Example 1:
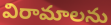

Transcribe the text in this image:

విరామాలను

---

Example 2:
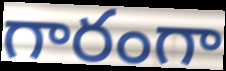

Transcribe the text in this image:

గారంగా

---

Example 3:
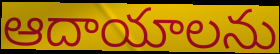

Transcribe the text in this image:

ఆదాయాలను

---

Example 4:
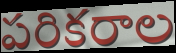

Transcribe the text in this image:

పరికరాల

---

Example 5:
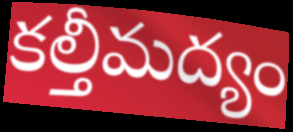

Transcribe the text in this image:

కల్తీమద్యం